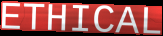
ETHICAL